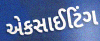
એકસાઈટિંગ